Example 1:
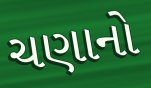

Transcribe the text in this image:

ચણાનો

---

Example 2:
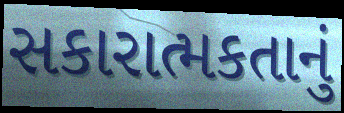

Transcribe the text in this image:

સકારાત્મકતાનું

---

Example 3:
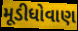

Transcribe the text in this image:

મૂડીધોવાણ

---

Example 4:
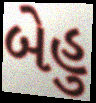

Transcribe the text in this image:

બેહુ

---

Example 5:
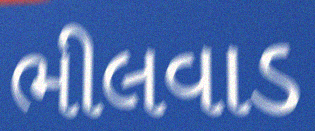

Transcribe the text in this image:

ભીલવાડ